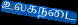
உலகநடை